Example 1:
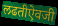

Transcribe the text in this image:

लढतीऐवजी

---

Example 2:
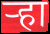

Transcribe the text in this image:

ऱ्हा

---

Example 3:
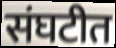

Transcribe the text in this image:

संघटीत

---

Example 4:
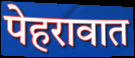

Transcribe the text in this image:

पेहरावात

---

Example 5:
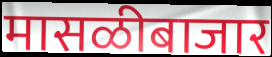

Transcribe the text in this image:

मासळीबाजार